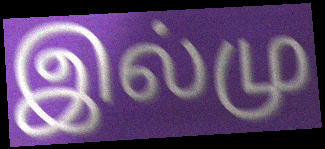
இல்மு